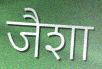
जैशा